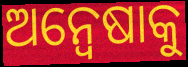
ଅନ୍ୱେଷାକୁ